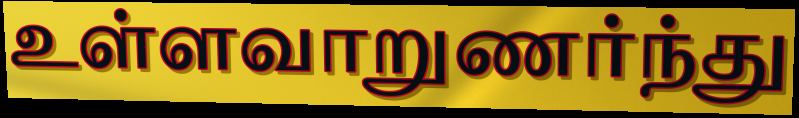
உள்ளவாறுணர்ந்து